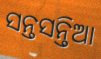
ସନ୍ତସନ୍ତିଆ